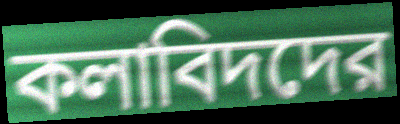
কলাবিদদের